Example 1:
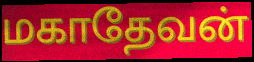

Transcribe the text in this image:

மகாதேவன்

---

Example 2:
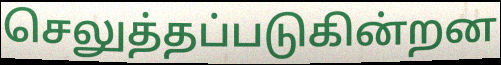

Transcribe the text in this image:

செலுத்தப்படுகின்றன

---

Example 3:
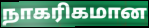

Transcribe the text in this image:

நாகரிகமான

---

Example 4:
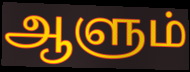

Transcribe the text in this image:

ஆளும்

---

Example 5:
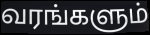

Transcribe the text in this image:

வரங்களும்